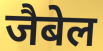
जैबेल